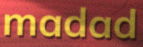
madad